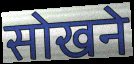
सोखने